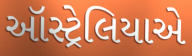
ઑસ્ટ્રેલિયાએ